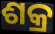
ଶକ୍ର